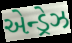
એન્ડ્રેઝ